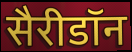
सैरीडॉन